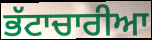
ਭੱਟਾਚਾਰੀਆ